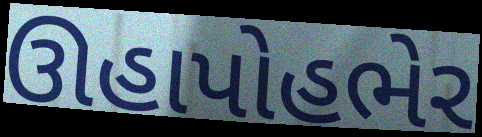
ઊહાપોહભેર